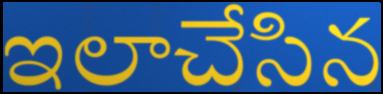
ఇలాచేసిన